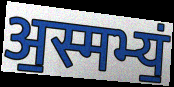
अ॒स्मभ्यं॒